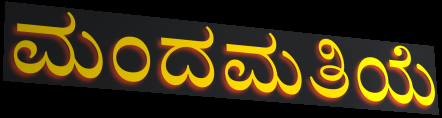
ಮಂದಮತಿಯೆ